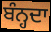
ਬੰਨ੍ਹਦਾ